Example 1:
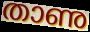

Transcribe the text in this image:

താണു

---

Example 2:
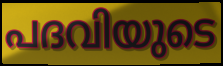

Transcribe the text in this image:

പദവിയുടെ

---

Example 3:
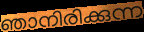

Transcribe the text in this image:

ഞാനിരിക്കുന്ന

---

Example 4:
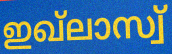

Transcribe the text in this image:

ഇഖ്ലാസ്വ്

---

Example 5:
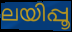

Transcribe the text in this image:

ലയിപ്പൂ